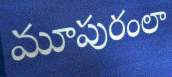
మూపురంలా